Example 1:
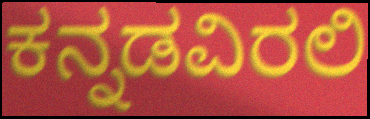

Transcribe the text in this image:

ಕನ್ನಡವಿರಲಿ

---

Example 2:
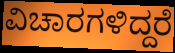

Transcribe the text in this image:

ವಿಚಾರಗಳಿದ್ದರೆ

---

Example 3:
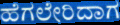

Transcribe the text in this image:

ಹೆಗಲೇರಿದಾಗ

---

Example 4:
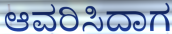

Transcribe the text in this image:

ಆವರಿಸಿದಾಗ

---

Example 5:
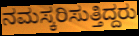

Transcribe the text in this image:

ನಮಸ್ಕರಿಸುತ್ತಿದ್ದರು